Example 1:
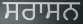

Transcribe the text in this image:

ਸਰਾਸਨ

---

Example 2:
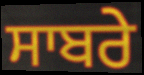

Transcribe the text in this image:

ਸਾਬਰੇ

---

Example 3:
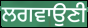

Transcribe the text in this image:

ਲਗਵਾਉਣੀ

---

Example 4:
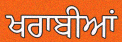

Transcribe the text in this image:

ਖਰਾਬੀਆਂ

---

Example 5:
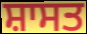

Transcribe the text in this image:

ਸ਼ਾਸਤ